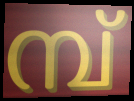
മ്പ്